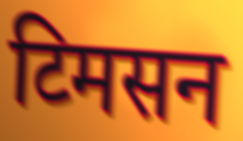
टिमसन